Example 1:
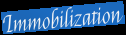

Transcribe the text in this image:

Immobilization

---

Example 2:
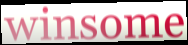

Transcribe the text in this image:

winsome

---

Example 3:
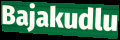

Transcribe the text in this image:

Bajakudlu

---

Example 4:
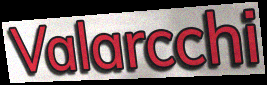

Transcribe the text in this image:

Valarcchi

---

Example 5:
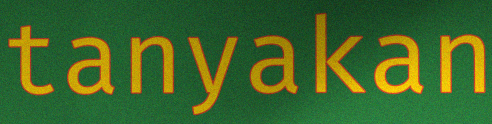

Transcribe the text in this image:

tanyakan